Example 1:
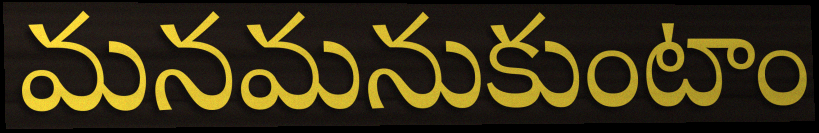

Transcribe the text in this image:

మనమనుకుంటాం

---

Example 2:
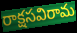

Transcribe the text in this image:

రాక్షసవిరామ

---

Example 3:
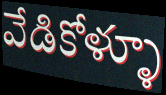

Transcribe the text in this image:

వేడికోళ్ళూ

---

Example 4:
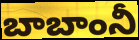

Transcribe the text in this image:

బాబాంనీ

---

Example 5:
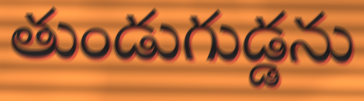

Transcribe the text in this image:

తుండుగుడ్డను